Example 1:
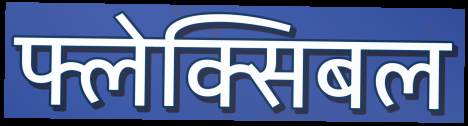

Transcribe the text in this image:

फ्लेक्सिबल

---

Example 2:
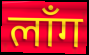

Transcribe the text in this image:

लाँग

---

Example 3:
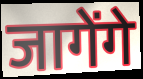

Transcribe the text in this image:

जागेंगे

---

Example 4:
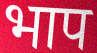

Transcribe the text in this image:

भाप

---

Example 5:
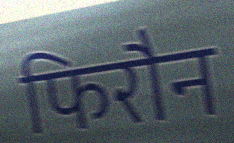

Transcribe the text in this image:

फिरौन